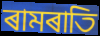
ৰামৰাতি